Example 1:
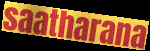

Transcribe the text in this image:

saatharana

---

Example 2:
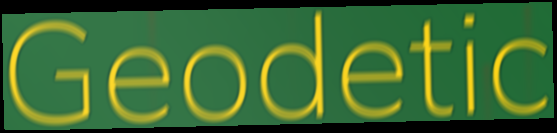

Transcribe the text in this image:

Geodetic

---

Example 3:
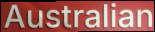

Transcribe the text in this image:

Australian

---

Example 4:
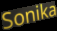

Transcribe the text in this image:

Sonika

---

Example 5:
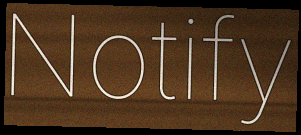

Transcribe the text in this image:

Notify